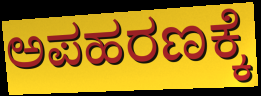
ಅಪಹರಣಕ್ಕೆ